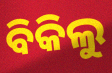
ବିକିଲୁ